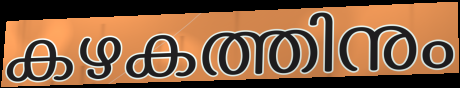
കഴകത്തിനും